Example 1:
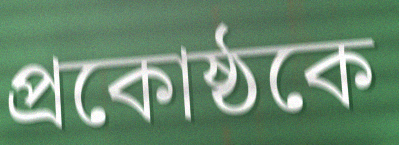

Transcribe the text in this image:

প্রকোষ্ঠকে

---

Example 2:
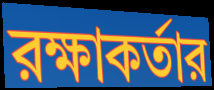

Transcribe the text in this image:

রক্ষাকর্তার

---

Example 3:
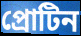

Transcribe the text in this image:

প্রোটিন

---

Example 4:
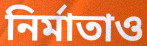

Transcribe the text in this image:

নির্মাতাও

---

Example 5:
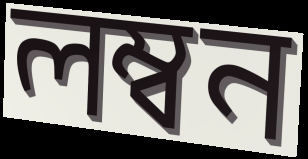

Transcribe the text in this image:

লম্বন